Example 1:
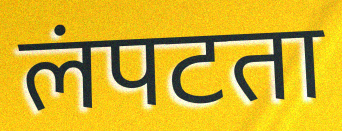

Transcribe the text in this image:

लंपटता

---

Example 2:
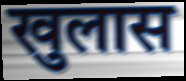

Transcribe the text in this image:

खुलास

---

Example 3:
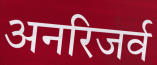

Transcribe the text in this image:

अनरिजर्व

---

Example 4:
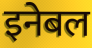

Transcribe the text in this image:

इनेबल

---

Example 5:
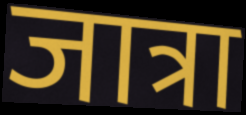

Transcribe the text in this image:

जात्रा